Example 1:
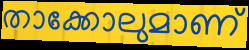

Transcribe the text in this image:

താക്കോലുമാണ്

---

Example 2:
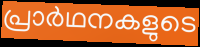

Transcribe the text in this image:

പ്രാർഥനകളുടെ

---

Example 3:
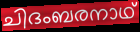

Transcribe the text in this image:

ചിദംബരനാഥ്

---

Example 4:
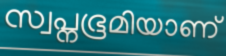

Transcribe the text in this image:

സ്വപ്നഭൂമിയാണ്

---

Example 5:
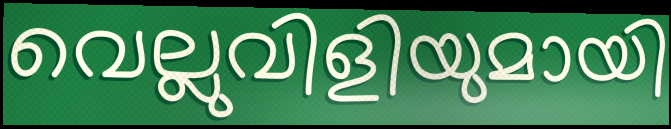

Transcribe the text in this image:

വെല്ലുവിളിയുമായി